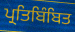
ਪ੍ਰਤਿਬਿੰਬਿਤ